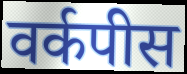
वर्कपीस